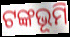
ଟଙ୍କଭୂମି